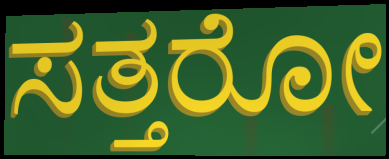
ಸತ್ತರೋ